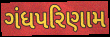
ગંધપરિણામ